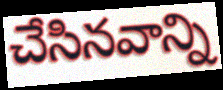
చేసినవాన్ని